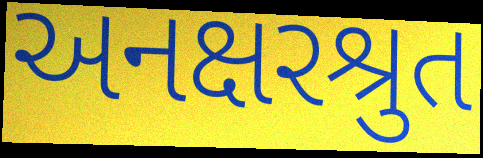
અનક્ષરશ્રુત